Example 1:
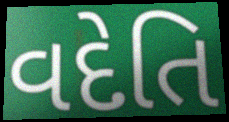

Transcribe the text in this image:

વદેતિ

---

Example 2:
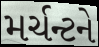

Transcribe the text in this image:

મર્ચન્ટને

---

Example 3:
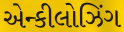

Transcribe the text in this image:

એન્કીલોઝિંગ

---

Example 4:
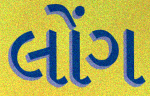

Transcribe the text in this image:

લોંગ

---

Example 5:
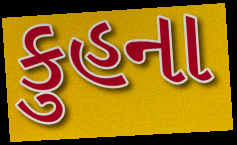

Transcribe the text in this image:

કુહના